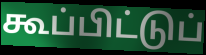
கூப்பிட்டுப்